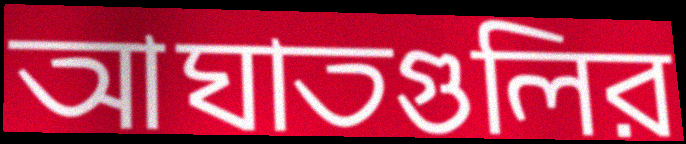
আঘাতগুলির